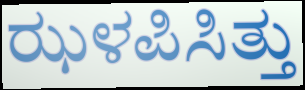
ಝಳಪಿಸಿತ್ತು